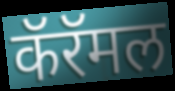
कॅरॅमल